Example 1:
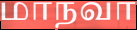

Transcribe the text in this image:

மாநவா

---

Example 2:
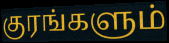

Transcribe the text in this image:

குரங்களும்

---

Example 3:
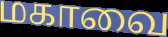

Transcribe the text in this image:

மகாவை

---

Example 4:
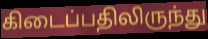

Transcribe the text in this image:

கிடைப்பதிலிருந்து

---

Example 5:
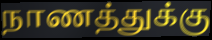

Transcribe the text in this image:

நாணத்துக்கு